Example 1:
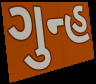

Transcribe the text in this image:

ગુન્હ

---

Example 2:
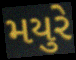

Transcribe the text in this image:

મયુરે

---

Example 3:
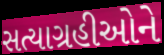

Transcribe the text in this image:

સત્યાગ્રહીઓને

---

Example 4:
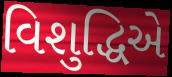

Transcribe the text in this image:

વિશુદ્ધિએ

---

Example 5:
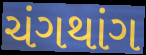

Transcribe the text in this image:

ચંગથાંગ